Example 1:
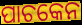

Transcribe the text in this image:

ପାଚକେନ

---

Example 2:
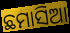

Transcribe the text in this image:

ଛମାସିଆ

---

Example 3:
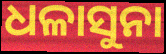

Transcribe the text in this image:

ଧଳାସୁନା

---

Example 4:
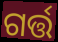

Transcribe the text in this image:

ଗର୍ତ୍ତ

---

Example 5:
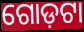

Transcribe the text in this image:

ଗୋଡ଼ଟା